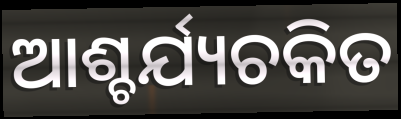
ଆଶ୍ଚର୍ଯ୍ୟଚକିତ